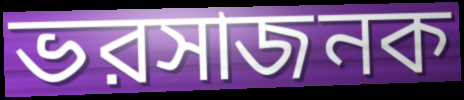
ভরসাজনক